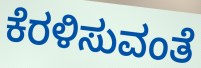
ಕೆರಳಿಸುವಂತೆ